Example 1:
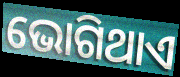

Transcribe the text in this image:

ଭୋଗିଥାଏ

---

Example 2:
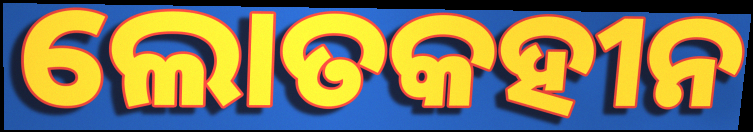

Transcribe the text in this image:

ଲୋତକହୀନ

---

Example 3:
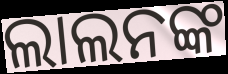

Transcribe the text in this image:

ଲାଲନଙ୍କ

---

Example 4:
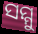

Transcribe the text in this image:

ସମ୍ମୁ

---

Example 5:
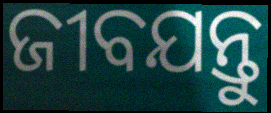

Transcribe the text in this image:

ଜୀବଯନ୍ତୁ